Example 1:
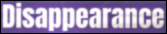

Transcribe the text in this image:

Disappearance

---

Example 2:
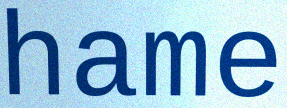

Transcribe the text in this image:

hame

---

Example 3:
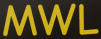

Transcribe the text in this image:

MWL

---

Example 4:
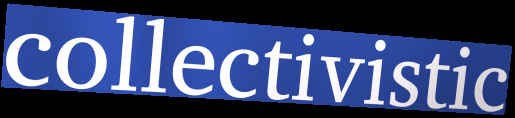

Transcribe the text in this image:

collectivistic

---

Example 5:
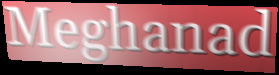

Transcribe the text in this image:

Meghanad